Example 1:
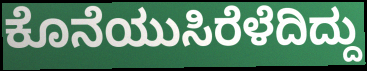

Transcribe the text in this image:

ಕೊನೆಯುಸಿರೆಳೆದಿದ್ದು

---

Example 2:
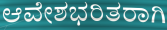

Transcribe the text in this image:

ಆವೇಶಭರಿತರಾಗಿ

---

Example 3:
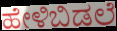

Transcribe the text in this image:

ಹೇಳಿಬಿಡಲೆ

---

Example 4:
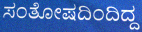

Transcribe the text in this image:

ಸಂತೋಷದಿಂದಿದ್ದ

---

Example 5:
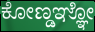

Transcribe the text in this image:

ಕೋಣ್ಡಞ್ಞೋ